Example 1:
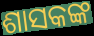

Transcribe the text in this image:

ଶାସକଙ୍କ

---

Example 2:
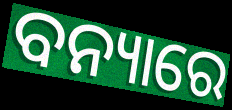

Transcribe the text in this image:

ବନ୍ୟାରେ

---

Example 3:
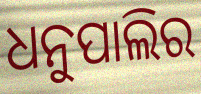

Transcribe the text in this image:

ଧନୁପାଲିର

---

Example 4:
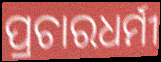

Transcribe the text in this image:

ପ୍ରଚାରଧର୍ମୀ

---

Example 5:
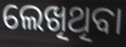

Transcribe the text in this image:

ଲେଖିଥିବା